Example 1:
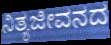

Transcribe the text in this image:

ನಿತ್ಯಜೀವನದ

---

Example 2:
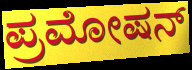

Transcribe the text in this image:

ಪ್ರಮೋಷನ್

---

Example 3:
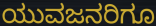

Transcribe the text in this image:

ಯುವಜನರಿಗೂ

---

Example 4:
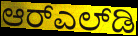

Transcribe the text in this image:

ಆರ್‌ಎಲ್‌ಡಿ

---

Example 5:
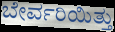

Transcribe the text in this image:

ಬೇರ್ವರಿಯಿತ್ತು